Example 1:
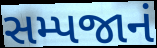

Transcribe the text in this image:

સમ્પજાનં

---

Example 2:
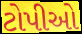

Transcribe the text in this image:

ટોપીઓ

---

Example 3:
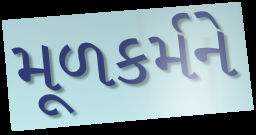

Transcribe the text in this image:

મૂળકર્મને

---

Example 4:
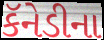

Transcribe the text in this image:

કૅનેડીના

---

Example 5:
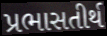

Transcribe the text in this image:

પ્રભાસતીર્થ